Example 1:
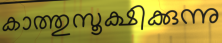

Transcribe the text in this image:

കാത്തുസൂക്ഷിക്കുന്നു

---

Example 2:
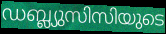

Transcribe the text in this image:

ഡബ്ല്യുസിസിയുടെ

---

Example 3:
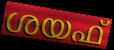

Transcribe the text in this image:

ശയഫ്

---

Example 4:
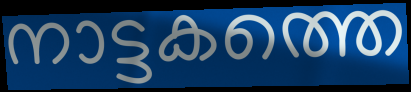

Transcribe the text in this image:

നാട്ടകത്തെ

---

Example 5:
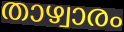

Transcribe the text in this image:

താഴ്വാരം